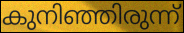
കുനിഞ്ഞിരുന്ന്